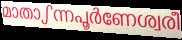
മാതാഽന്നപൂർണേശ്വരീ